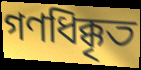
গণধিক্কৃত